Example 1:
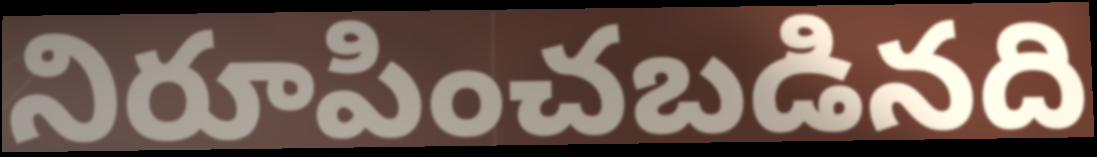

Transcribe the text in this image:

నిరూపించబడినది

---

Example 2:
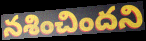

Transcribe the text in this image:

నశించిందని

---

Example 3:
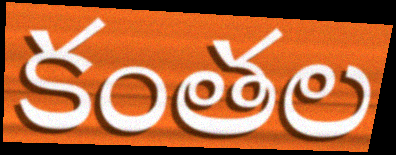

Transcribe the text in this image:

కంతల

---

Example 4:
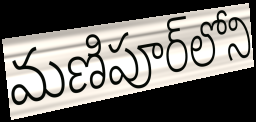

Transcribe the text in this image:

మణిపూర్‌లోని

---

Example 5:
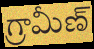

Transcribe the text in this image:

గ్రామీణ్